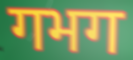
गभग